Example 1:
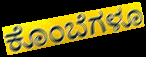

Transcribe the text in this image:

ಕೊಂಬೆಗಳೂ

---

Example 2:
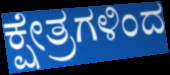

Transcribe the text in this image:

ಕ್ಷೇತ್ರಗಳಿಂದ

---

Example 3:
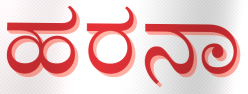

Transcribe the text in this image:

ಹರನಾ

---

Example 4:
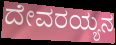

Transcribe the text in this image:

ದೇವರಯ್ಯನ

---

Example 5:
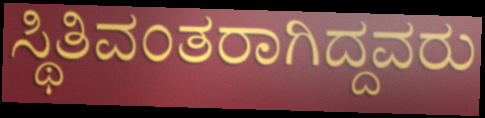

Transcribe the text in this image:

ಸ್ಥಿತಿವಂತರಾಗಿದ್ದವರು